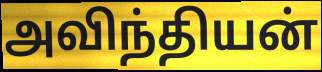
அவிந்தியன்